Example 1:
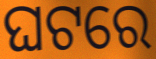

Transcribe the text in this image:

ଘଟରେ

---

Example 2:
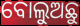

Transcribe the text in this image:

ବୋଲୁଅଛୁ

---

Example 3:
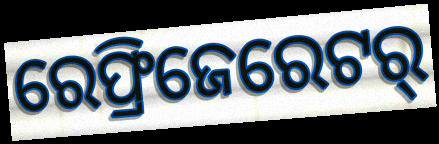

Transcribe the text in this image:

ରେଫ୍ରିଜେରେଟର୍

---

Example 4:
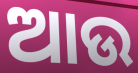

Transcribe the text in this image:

ଆଉ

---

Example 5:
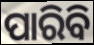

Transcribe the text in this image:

ପାରିବି